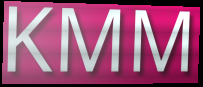
KMM